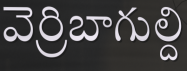
వెర్రిబాగుల్ది